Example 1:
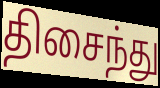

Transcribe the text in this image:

திசைந்து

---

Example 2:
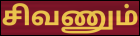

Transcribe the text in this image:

சிவணும்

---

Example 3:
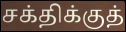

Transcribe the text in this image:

சக்திக்குத்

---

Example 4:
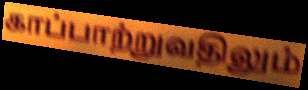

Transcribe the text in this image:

காப்பாற்றுவதிலும்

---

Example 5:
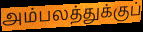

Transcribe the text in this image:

அம்பலத்துக்குப்